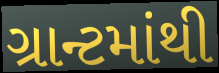
ગ્રાન્ટમાંથી